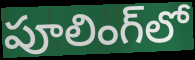
పూలింగ్‌లో